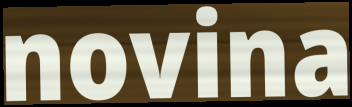
novina